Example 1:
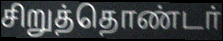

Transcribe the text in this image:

சிறுத்தொண்டர்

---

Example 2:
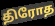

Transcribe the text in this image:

திரோத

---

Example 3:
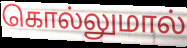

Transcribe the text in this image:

கொல்லுமால்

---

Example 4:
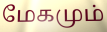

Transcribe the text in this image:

மேகமும்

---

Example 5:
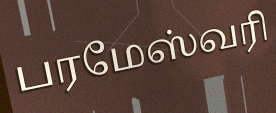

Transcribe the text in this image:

பரமேஸ்வரி